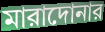
মারাদোনার